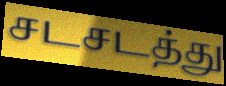
சடசடத்து